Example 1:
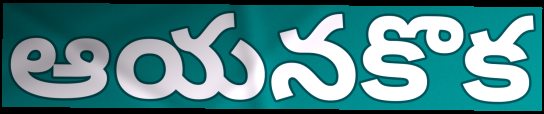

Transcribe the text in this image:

ఆయనకొక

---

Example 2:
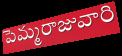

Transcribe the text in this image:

పెమ్మరాజువారి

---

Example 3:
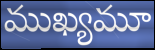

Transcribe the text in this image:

ముఖ్యమూ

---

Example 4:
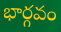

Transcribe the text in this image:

భార్గవం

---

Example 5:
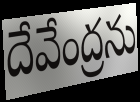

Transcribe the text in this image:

దేవేంద్రను